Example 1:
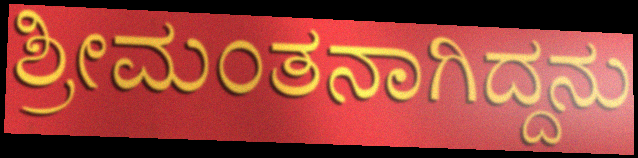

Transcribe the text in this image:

ಶ್ರೀಮಂತನಾಗಿದ್ದನು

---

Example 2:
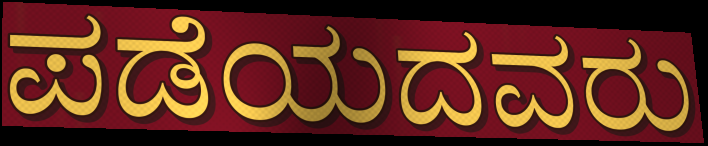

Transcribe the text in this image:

ಪಡೆಯದವರು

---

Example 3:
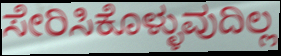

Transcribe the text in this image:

ಸೇರಿಸಿಕೊಳ್ಳುವುದಿಲ್ಲ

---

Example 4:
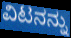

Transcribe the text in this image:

ವಿಟನನ್ನು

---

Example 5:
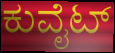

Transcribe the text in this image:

ಕುವೈಟ್